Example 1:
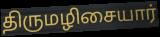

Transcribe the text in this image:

திருமழிசையார்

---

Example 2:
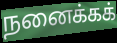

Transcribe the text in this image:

நனைக்கக்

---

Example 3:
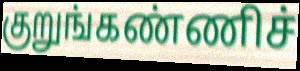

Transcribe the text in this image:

குறுங்கண்ணிச்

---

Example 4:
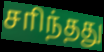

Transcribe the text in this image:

சரிந்தது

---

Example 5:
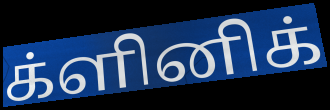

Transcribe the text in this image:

க்ளினிக்